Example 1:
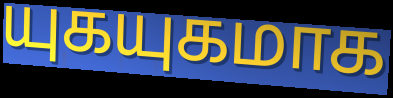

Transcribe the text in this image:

யுகயுகமாக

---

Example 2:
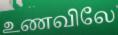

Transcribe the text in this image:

உணவிலே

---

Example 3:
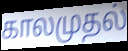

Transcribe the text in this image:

காலமுதல்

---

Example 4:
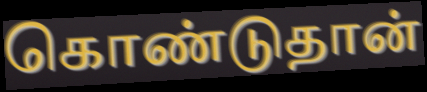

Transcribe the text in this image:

கொண்டுதான்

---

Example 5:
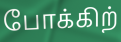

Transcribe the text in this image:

போக்கிற்